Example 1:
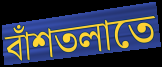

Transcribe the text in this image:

বাঁশতলাতে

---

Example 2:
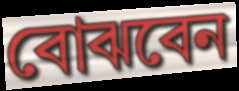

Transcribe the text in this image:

বোঝবেন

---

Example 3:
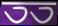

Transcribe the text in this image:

তত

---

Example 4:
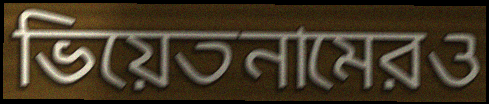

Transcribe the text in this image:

ভিয়েতনামেরও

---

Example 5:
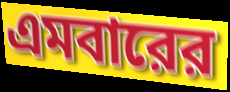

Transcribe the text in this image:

এমবারের